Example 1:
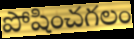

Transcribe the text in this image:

పోషించగలం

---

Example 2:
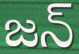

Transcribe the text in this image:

జన్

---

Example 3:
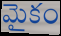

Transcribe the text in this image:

మైకం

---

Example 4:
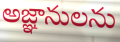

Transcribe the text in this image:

అజ్ఞానులను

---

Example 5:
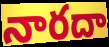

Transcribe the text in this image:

నారదా